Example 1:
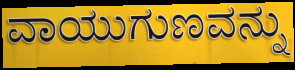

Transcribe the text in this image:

ವಾಯುಗುಣವನ್ನು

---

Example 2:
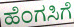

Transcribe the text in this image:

ಹೆಂಗಸಿಗೆ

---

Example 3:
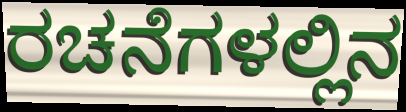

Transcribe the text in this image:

ರಚನೆಗಳಲ್ಲಿನ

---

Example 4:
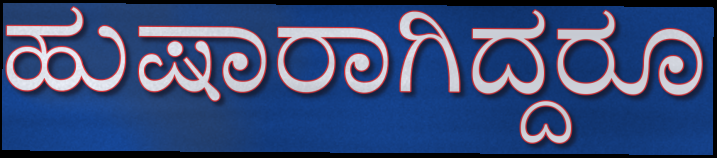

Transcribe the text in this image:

ಹುಷಾರಾಗಿದ್ದರೂ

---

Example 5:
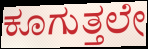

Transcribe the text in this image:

ಕೂಗುತ್ತಲೇ